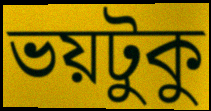
ভয়টুকু